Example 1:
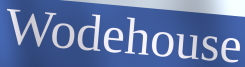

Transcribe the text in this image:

Wodehouse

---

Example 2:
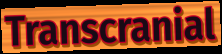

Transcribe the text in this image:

Transcranial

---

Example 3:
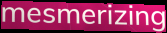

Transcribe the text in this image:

mesmerizing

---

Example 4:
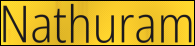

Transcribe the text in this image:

Nathuram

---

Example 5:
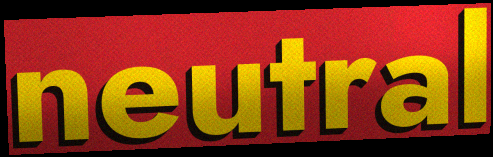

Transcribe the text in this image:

neutral